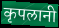
कृपलानी